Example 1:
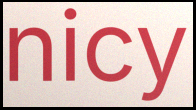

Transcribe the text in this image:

nicy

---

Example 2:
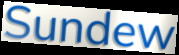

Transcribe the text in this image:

Sundew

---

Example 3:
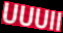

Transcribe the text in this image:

UUUII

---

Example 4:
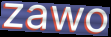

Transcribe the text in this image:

zawo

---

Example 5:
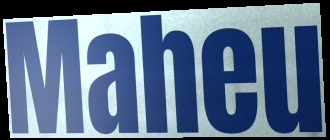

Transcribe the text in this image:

Maheu